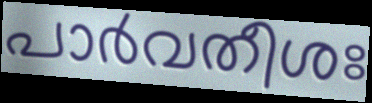
പാർവതീശഃ